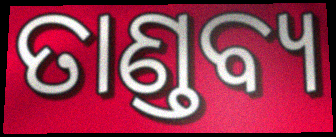
ତାଣ୍ଡବ୍ୟ